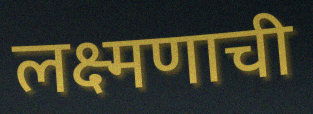
लक्ष्मणाची